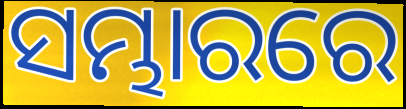
ସମ୍ଭାରରେ